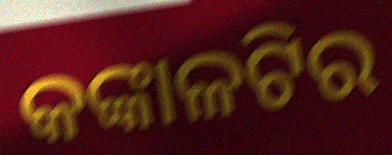
କଙ୍କାଳଟିର